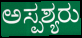
ಅಸ್ಪಶ್ಯರು